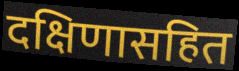
दक्षिणासहित